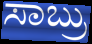
ಸಾಬ್ರು